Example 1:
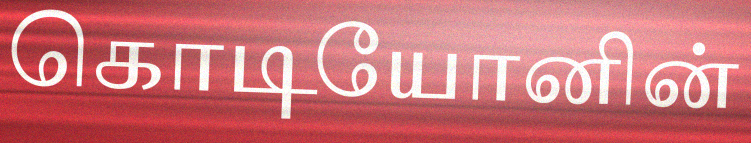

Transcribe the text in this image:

கொடியோனின்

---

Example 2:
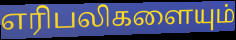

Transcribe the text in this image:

எரிபலிகளையும்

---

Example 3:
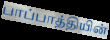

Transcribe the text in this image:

பாப்பாத்தியின்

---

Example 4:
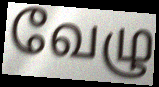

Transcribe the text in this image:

வேழு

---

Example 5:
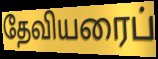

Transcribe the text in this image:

தேவியரைப்